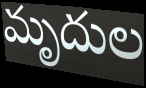
మృదుల